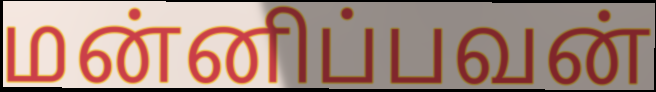
மன்னிப்பவன்